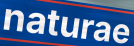
naturae